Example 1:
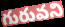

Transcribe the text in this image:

గురువని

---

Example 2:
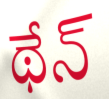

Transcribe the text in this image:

థేన్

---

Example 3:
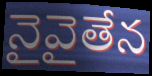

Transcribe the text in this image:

నైవైతేన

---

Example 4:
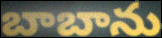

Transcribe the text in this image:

బాబాను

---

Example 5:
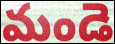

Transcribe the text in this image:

మండె